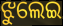
ଝୁଲେଇ